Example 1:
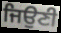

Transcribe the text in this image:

ਜਿਉਣੀ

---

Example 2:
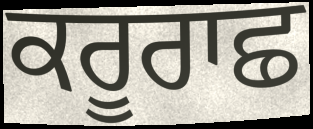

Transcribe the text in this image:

ਕਰੂਰਾਛ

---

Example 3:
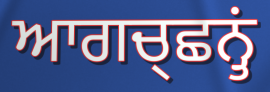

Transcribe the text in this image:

ਆਗਚ੍ਛਨ੍ਤਂ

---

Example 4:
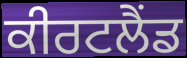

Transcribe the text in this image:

ਕੀਰਟਲੈਂਡ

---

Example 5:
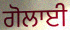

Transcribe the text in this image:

ਗੋਲਾਈ